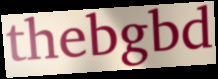
thebgbd